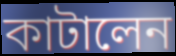
কাটালেন